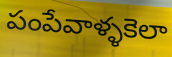
పంపేవాళ్ళకెలా